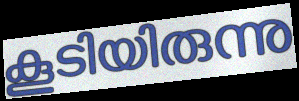
കൂടിയിരുന്നു